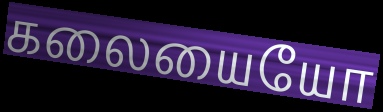
கலையையோ